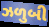
ઝળુબી